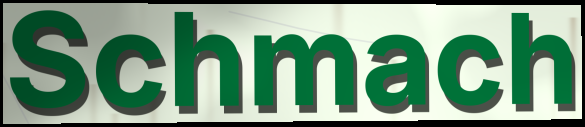
Schmach